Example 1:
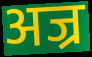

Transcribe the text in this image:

अज्र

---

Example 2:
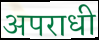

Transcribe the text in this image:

अपराधी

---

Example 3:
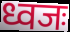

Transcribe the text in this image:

ध्वजः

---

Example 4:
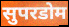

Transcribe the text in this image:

सुपरडोम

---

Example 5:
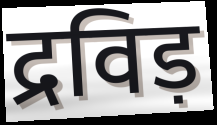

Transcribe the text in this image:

द्रविड़